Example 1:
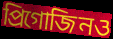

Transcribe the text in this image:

প্রিগোজিনও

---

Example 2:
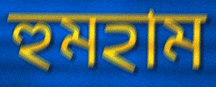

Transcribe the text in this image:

হুমহাম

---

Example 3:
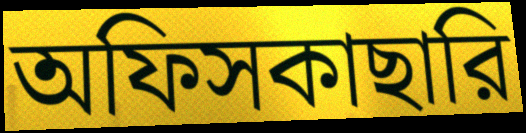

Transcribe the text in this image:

অফিসকাছারি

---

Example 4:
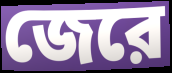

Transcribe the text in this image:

জেরে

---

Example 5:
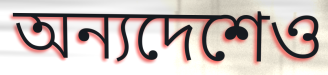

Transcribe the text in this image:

অন্যদেশেও